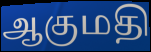
ஆகுமதி